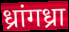
ध्रांगध्रा